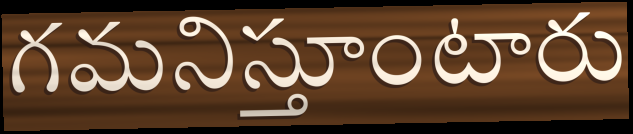
గమనిస్తూంటారు